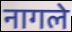
नागले